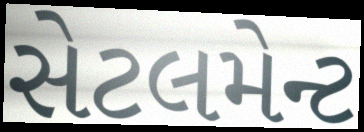
સેટલમેન્ટ